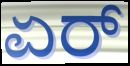
ಏರ್